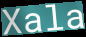
Xala